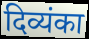
दिव्यंका